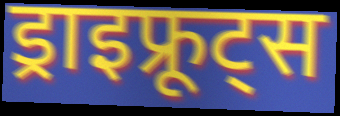
ड्राइफ्रूट्स